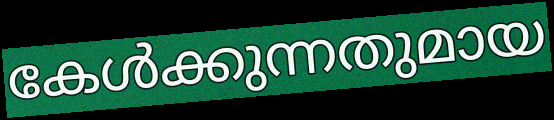
കേൾക്കുന്നതുമായ